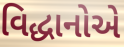
વિદ્ધાનોએ